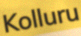
Kolluru